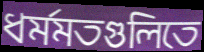
ধর্মমতগুলিতে